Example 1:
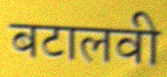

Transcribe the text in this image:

बटालवी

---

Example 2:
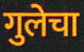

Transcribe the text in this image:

गुलेचा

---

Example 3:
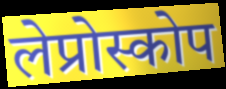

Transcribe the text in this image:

लेप्रोस्कोप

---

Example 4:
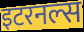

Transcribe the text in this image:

इटरनल्स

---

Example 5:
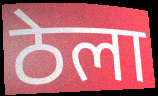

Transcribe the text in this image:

ठेला